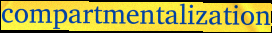
compartmentalization